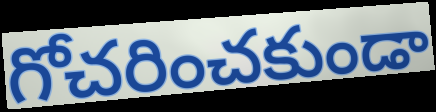
గోచరించకుండా